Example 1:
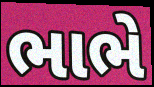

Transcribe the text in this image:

ભાભે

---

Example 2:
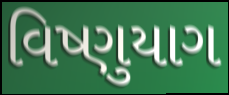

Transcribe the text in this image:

વિષ્ણુયાગ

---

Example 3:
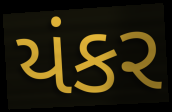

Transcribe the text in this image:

યંકર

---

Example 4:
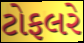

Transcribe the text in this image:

ટોફલરે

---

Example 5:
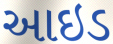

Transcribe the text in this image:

આઇડ